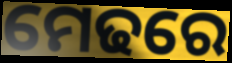
ମେଢରେ